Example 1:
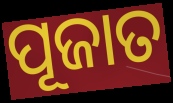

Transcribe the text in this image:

ପୂଜାତ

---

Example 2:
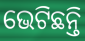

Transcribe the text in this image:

ଭେଟିଛନ୍ତି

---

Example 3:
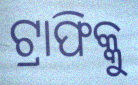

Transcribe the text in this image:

ଟ୍ରାଫିକ୍କୁ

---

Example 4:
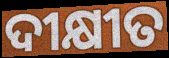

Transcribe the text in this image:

ଦୀକ୍ଷୀତ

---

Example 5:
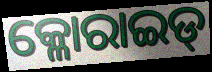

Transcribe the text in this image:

କ୍ଳୋରାଇଡ୍